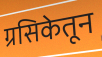
ग्रसिकेतून